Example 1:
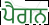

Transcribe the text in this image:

ਪੈਗਨ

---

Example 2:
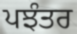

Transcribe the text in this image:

ਪਝੰਤਰ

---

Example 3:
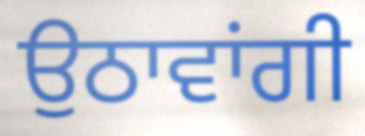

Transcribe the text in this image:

ਉਠਾਵਾਂਗੀ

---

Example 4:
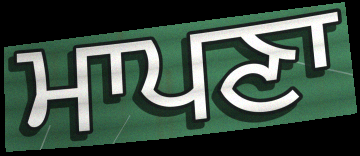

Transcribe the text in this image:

ਮਾਪਣਾ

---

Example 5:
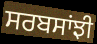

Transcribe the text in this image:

ਸਰਬਸਾਂਝੀ